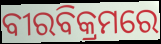
ବୀରବିକ୍ରମରେ